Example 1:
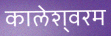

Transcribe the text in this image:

कालेश्वरम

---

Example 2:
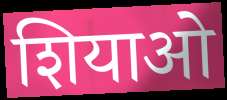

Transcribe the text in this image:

शियाओ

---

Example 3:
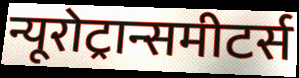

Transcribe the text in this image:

न्यूरोट्रान्समीटर्स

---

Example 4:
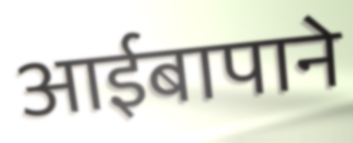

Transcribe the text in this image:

आईबापाने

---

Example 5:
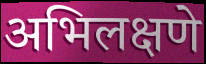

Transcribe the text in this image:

अभिलक्षणे